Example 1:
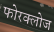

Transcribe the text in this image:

फोरक्लोज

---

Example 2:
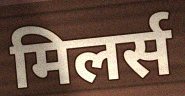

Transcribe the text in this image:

मिलर्स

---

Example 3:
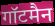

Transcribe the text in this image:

गॉटमैन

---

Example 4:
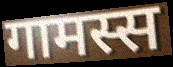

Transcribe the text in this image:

गामस्स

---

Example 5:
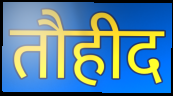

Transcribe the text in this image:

तौहीद